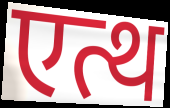
एत्थ